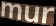
mur